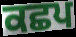
ਕਛਪ